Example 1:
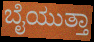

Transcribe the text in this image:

ಬೈಯುತ್ತಾ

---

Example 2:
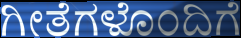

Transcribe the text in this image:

ಗೀತೆಗಳೊಂದಿಗೆ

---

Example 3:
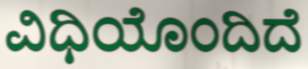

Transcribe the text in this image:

ವಿಧಿಯೊಂದಿದೆ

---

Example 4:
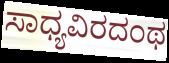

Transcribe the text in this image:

ಸಾಧ್ಯವಿರದಂಥ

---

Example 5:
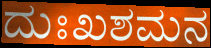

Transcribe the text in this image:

ದುಃಖಶಮನ